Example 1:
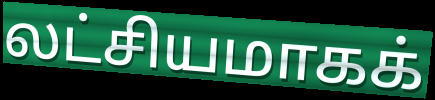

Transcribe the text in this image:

லட்சியமாகக்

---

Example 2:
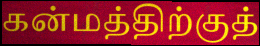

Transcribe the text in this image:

கன்மத்திற்குத்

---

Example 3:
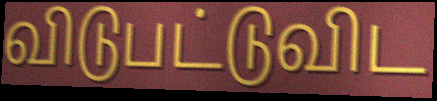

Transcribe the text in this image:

விடுபட்டுவிட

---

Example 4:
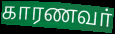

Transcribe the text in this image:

காரணவர்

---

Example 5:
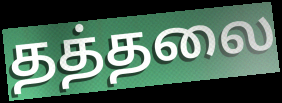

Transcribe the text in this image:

தத்தலை